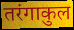
तरंगाकुल